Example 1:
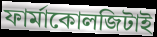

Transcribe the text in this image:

ফার্মাকোলজিটাই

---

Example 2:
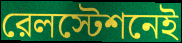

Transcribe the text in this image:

রেলস্টেশনেই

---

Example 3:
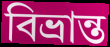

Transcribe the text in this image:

বিভ্রান্ত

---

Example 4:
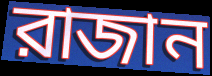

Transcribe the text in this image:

রাজান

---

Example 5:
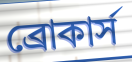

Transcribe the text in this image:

ব্রোকার্স